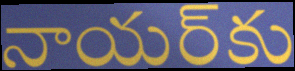
నాయర్‌కు